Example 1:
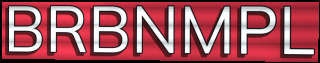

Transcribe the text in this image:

BRBNMPL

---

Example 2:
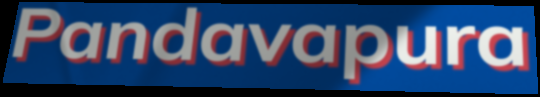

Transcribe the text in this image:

Pandavapura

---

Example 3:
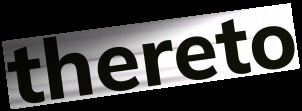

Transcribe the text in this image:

thereto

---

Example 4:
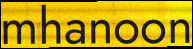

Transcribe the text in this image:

mhanoon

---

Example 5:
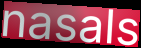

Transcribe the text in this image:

nasals